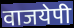
वाजयेपी